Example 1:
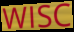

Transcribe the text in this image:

WISC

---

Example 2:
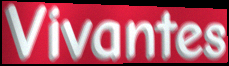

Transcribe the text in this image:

Vivantes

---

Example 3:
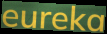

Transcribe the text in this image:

eureka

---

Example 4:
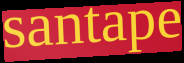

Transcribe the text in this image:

santape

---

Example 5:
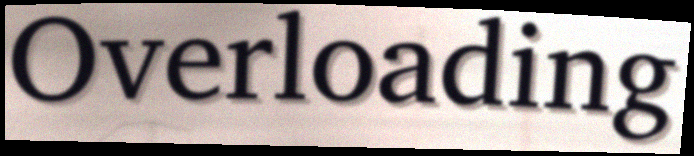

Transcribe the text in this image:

Overloading